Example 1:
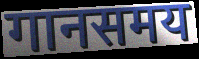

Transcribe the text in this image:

गानसमय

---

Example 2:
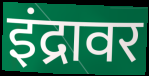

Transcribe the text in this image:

इंद्रावर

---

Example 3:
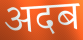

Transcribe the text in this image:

अदब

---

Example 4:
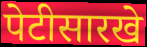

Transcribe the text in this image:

पेटीसारखे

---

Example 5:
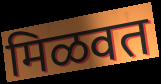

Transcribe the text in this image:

मिळवत